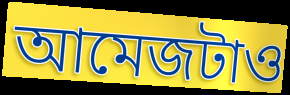
আমেজটাও